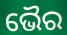
ଭୈର